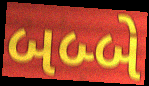
બબ્બે